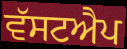
ਵੱਸਟਐਪ